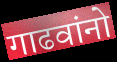
गाढवांनो